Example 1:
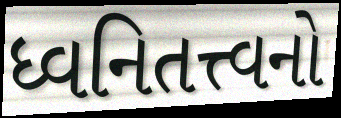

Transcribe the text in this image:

ધ્વનિતત્ત્વનો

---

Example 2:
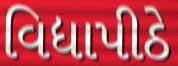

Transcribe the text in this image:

વિદ્યાપીઠે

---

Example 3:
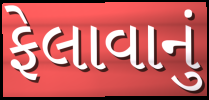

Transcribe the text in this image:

ફેલાવાનું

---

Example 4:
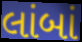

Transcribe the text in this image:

લાંબાં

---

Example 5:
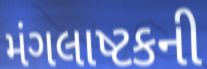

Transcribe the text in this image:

મંગલાષ્ટકની